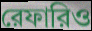
রেফারিও